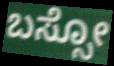
ಬಸ್ಸೋ